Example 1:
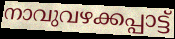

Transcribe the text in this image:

നാവുവഴക്കപ്പാട്ട്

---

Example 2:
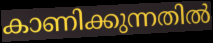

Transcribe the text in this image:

കാണിക്കുന്നതിൽ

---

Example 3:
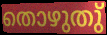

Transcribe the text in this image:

തൊഴുതു്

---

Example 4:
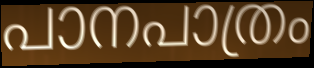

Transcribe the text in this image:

പാനപാത്രം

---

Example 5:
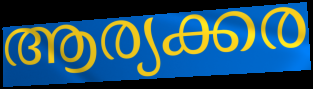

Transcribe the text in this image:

ആര്യക്കര